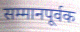
सम्मानपूर्वक